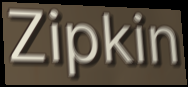
Zipkin